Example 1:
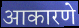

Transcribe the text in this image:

आकारणे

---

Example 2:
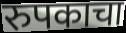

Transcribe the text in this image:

रुपकाचा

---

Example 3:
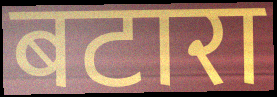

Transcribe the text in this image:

बटारा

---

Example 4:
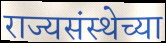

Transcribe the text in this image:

राज्यसंस्थेच्या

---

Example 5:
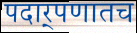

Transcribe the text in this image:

पदार्पणातच